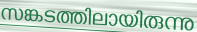
സങ്കടത്തിലായിരുന്നു